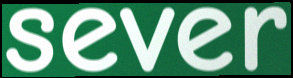
sever